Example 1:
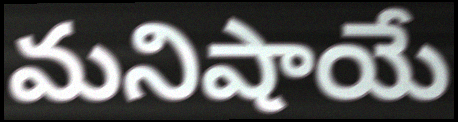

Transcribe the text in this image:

మనిషాయే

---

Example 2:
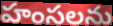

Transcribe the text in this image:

హంసలను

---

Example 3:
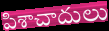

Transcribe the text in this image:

పిశాచాదులు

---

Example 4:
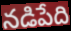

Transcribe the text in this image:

నడిపేది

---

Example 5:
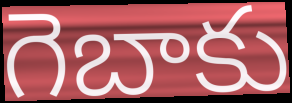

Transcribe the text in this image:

గెబాకు